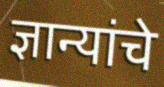
ज्ञान्यांचे